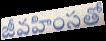
జీవహింసతో